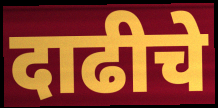
दाढीचे